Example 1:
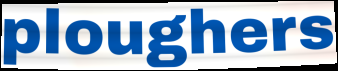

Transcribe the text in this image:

ploughers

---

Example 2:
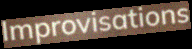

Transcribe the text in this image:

Improvisations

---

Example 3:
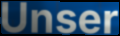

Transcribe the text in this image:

Unser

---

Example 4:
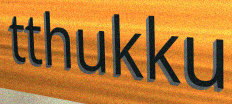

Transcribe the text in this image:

tthukku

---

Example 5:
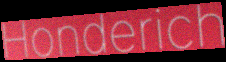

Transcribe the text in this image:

Honderich